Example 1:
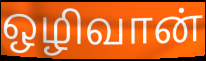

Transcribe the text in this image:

ஒழிவான்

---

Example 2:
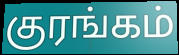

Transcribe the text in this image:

குரங்கம்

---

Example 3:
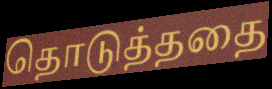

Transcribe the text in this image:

தொடுத்ததை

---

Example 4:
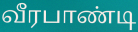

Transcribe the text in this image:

வீரபாண்டி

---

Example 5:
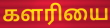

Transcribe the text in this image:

களரியை